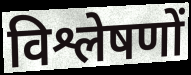
विश्लेषणों